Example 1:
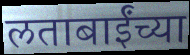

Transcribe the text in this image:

लताबाईंच्या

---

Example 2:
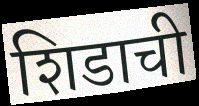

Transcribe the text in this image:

शिडाची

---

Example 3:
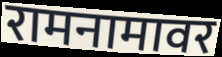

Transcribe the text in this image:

रामनामावर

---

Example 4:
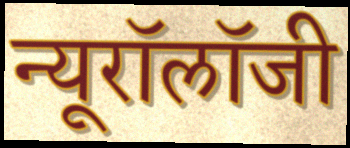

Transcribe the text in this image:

न्यूरॉलॉजी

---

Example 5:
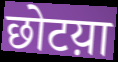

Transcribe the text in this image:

छोटय़ा